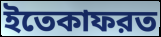
ইতেকাফরত